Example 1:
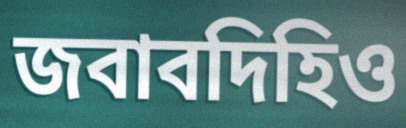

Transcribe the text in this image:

জবাবদিহিও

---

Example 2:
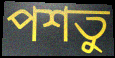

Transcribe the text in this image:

পশতু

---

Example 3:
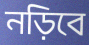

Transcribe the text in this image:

নড়িবে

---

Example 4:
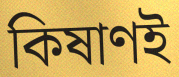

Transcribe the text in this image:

কিষাণই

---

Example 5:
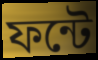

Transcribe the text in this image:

ফন্টে